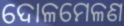
ଦୋଳମେଳଣ